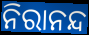
ନିରାନନ୍ଦ